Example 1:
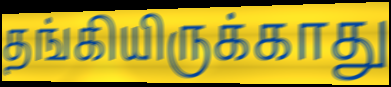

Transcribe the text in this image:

தங்கியிருக்காது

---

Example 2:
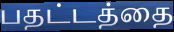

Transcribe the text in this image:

பதட்டத்தை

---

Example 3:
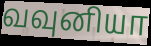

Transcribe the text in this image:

வவுனியா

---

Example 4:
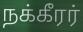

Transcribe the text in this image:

நக்கீரர்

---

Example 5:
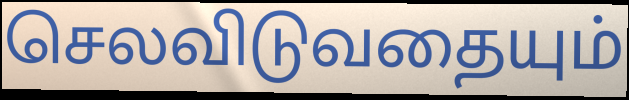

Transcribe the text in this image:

செலவிடுவதையும்